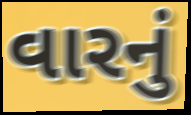
વારનું